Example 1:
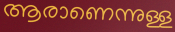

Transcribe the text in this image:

ആരാണെന്നുള്ള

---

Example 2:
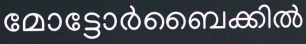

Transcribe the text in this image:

മോട്ടോർബൈക്കിൽ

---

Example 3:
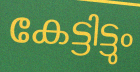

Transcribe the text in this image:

കേട്ടിട്ടും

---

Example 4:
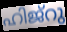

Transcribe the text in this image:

ഹിജ്റു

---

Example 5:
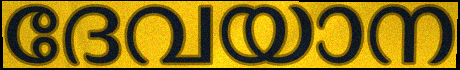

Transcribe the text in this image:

ദേവയാന